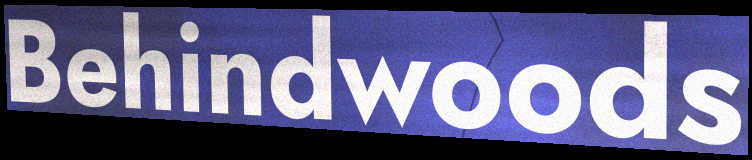
Behindwoods